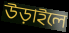
উড়াইলে